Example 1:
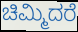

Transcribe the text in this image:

ಚಿಮ್ಮಿದರೆ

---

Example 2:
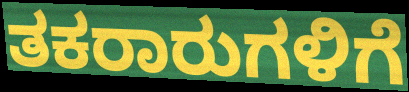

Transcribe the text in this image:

ತಕರಾರುಗಳಿಗೆ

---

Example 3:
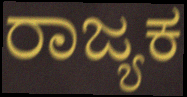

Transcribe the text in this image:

ರಾಜ್ಯಕ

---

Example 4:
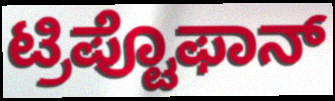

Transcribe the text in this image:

ಟ್ರಿಪ್ಟೊಫಾನ್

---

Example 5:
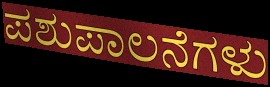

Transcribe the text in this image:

ಪಶುಪಾಲನೆಗಳು